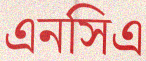
এনসিএ